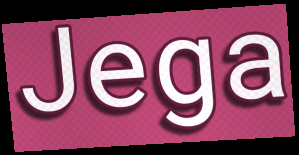
Jega